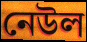
নেউল